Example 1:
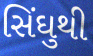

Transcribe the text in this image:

સિંઘુથી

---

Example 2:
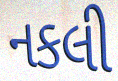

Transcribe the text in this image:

નકલી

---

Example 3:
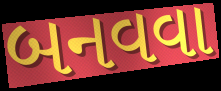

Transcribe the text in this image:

બનવવા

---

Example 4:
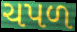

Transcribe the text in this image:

ચપળ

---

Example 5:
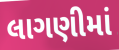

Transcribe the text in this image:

લાગણીમાં